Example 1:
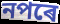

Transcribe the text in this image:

নপৰে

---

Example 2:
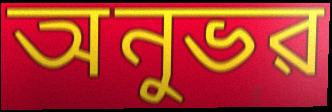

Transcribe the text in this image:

অনুভৱ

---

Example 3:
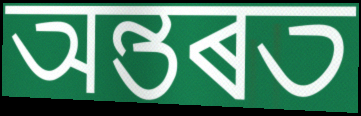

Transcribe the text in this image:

অন্তৰত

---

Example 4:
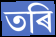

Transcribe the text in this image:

তৰি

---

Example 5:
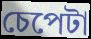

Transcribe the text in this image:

চেপেটা